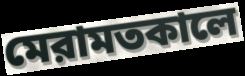
মেরামতকালে